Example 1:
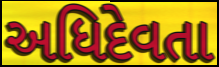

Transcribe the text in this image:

અધિદેવતા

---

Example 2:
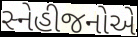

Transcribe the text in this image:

સ્નેહીજનોએ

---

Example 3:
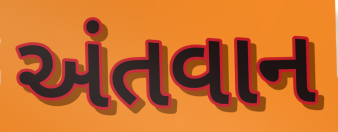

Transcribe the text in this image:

અંતવાન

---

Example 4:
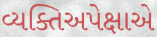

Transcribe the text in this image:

વ્યક્તિઅપેક્ષાએ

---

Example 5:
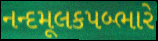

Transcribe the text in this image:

નન્દમૂલકપબ્ભારે